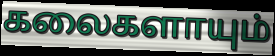
கலைகளாயும்